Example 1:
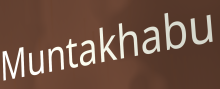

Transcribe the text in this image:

Muntakhabu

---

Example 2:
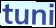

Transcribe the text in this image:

tuni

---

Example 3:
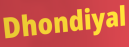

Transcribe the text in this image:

Dhondiyal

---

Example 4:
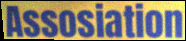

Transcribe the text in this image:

Assosiation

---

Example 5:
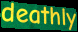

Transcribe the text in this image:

deathly